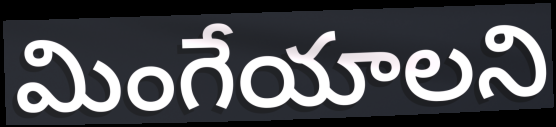
మింగేయాలని